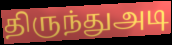
திருந்துஅடி